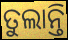
ତୁଲାନ୍ତି